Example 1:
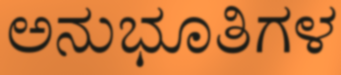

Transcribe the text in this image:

ಅನುಭೂತಿಗಳ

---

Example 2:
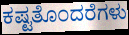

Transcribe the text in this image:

ಕಷ್ಟತೊಂದರೆಗಳು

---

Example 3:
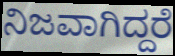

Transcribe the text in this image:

ನಿಜವಾಗಿದ್ದರೆ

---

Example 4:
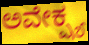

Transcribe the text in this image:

ಅವೇಕ್ಷ್ಯ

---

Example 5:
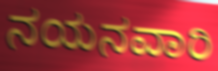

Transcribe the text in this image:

ನಯನವಾರಿ